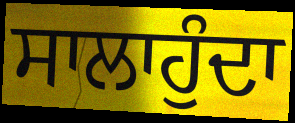
ਸਾਲਾਹੁੰਦਾ